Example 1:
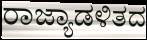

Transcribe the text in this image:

ರಾಜ್ಯಾಡಳಿತದ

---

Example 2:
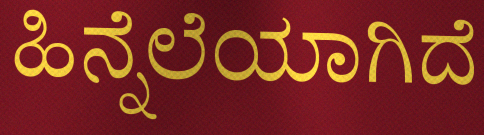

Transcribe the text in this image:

ಹಿನ್ನೆಲೆಯಾಗಿದೆ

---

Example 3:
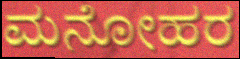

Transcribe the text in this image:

ಮನೋಹರ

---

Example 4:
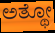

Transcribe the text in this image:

ಅತ್ಥೋ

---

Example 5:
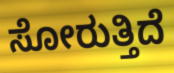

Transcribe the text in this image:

ಸೋರುತ್ತಿದೆ